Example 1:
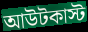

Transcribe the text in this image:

আউটকাস্ট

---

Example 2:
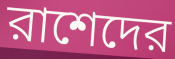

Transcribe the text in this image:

রাশেদের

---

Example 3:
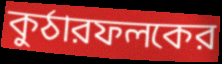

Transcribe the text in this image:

কুঠারফলকের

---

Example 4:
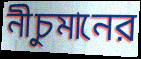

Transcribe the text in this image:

নীচুমানের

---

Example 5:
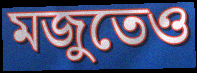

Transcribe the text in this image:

মজুতেও